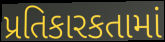
પ્રતિકારકતામાં